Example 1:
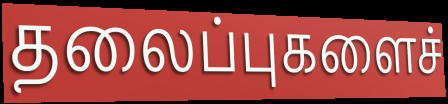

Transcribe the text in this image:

தலைப்புகளைச்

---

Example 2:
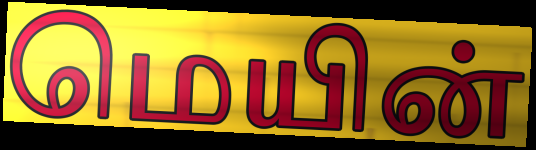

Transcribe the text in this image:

மெயின்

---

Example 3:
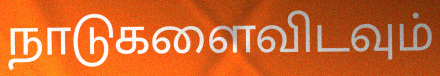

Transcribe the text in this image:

நாடுகளைவிடவும்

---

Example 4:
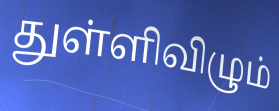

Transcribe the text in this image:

துள்ளிவிழும்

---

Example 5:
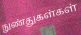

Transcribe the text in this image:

நுண்துகள்கள்